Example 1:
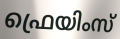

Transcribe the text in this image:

ഫ്രെയിംസ്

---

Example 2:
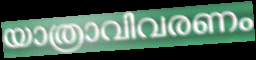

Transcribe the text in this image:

യാത്രാവിവരണം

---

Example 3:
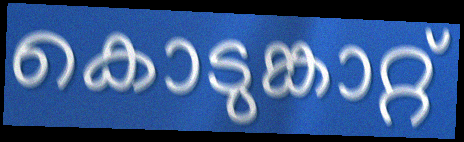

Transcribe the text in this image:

കൊടുങ്കാറ്റ്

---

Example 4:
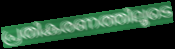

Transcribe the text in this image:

പ്രതികരണത്തിലൂടെ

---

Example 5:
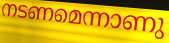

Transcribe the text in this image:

നടണമെന്നാണു